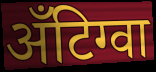
अँटिग्वा